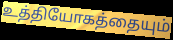
உத்தியோகத்தையும்